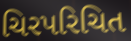
ચિરપરિચિત